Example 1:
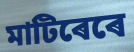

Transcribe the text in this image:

মাটিৰেৰে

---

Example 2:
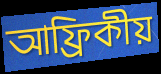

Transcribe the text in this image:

আফ্ৰিকীয়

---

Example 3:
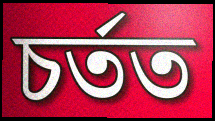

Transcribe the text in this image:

চৰ্তত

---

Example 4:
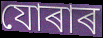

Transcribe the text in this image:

যোৰাৰ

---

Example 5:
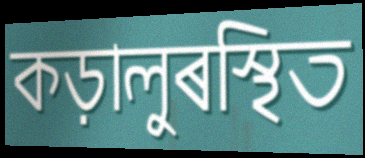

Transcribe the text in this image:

কড়ালুৰস্থিত